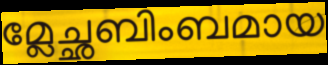
മ്ലേച്ഛബിംബമായ